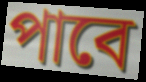
পাবে